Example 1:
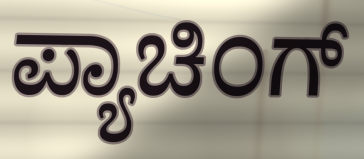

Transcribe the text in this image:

ಪ್ಯಾಚಿಂಗ್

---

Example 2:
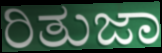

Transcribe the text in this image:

ರಿತುಜಾ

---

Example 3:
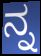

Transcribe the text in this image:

ನ್ನ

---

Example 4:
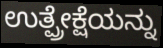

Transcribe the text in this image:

ಉತ್ಪ್ರೇಕ್ಷೆಯನ್ನು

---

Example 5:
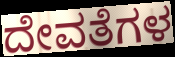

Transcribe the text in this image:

ದೇವತೆಗಳ